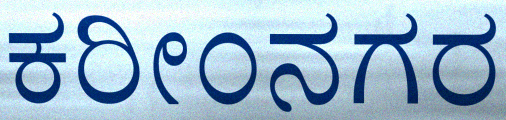
ಕರೀಂನಗರ